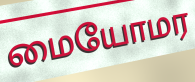
மையோமர